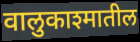
वालुकाश्मातील